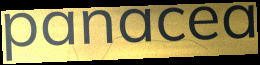
panacea